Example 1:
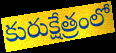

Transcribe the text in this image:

కురుక్షేత్రంలో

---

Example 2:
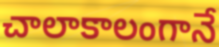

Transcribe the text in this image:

చాలాకాలంగానే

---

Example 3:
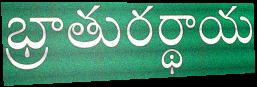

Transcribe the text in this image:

భ్రాతురర్థాయ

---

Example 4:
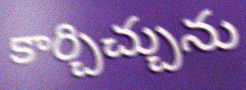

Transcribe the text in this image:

కార్చిచ్చును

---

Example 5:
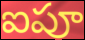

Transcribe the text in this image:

ఐపూ